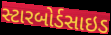
સ્ટારબોર્ડસાઇડ